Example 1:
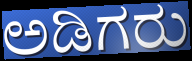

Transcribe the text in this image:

ಅಡಿಗರು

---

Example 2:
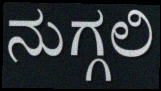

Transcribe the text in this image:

ನುಗ್ಗಲಿ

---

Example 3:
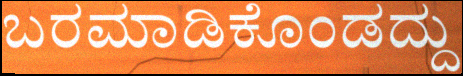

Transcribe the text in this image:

ಬರಮಾಡಿಕೊಂಡದ್ದು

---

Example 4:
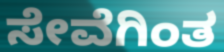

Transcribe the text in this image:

ಸೇವೆಗಿಂತ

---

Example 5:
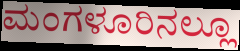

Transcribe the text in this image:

ಮಂಗಳೂರಿನಲ್ಲೂ